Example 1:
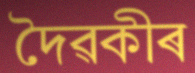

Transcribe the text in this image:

দৈৱকীৰ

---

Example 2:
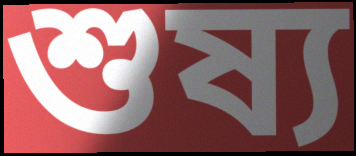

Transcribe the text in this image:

শুষ্য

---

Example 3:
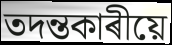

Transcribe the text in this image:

তদন্তকাৰীয়ে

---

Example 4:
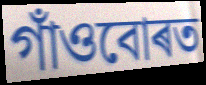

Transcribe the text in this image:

গাঁওবোৰত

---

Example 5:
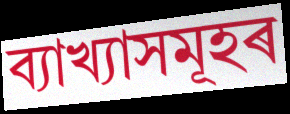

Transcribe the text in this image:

ব্যাখ্যাসমূহৰ